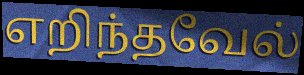
எறிந்தவேல்